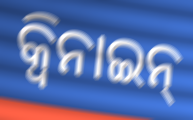
କ୍ୱିନାଇନ୍